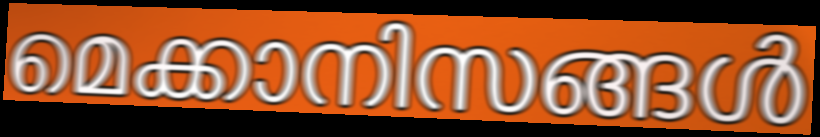
മെക്കാനിസങ്ങൾ